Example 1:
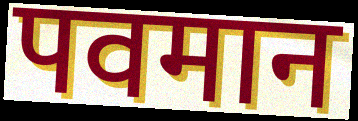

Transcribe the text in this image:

पवमान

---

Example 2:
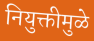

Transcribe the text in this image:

नियुक्तीमुळे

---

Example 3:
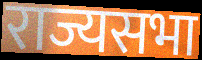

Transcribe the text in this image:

राज्यसभा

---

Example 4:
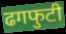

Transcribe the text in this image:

ढगफुटी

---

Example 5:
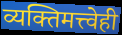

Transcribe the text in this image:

व्यक्तिमत्त्वेही